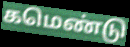
கமெண்டு